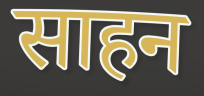
साहन